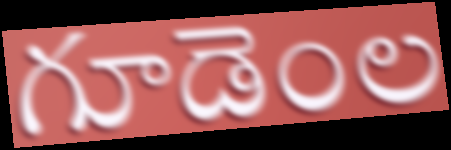
గూడెంల